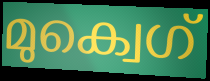
മുക്വെഗ്